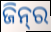
ଜିନ୍‌ର